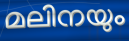
മലിനയും